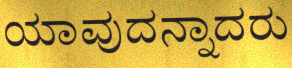
ಯಾವುದನ್ನಾದರು